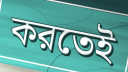
করতেই